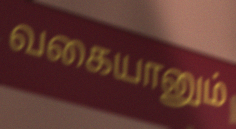
வகையானும்